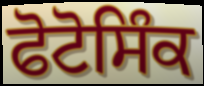
ਫੋਟੋਸਿੰਕ